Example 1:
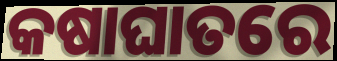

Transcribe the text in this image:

କଷାଘାତରେ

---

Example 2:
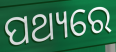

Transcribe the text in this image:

ପଥ୍ୟରେ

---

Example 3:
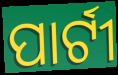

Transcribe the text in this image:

ପାର୍ଟୀ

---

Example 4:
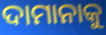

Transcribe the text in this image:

ଦାମାନାକୁ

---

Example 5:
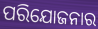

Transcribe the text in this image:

ପରିଯୋଜନାର